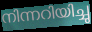
നിന്നറിയിച്ചു